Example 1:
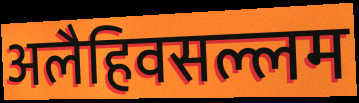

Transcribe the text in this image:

अलैहिवसल्लम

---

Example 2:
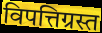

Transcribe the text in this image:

विपत्तिग्रस्त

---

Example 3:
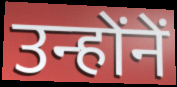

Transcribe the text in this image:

उन्‍होंनें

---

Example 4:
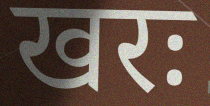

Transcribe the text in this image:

खरः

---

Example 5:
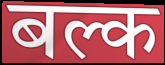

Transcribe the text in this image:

बल्क